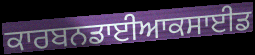
ਕਾਰਬਨਡਾਈਆਕਸਾਈਡ